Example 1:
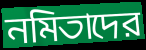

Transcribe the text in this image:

নমিতাদের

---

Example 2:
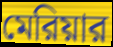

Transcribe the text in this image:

মেরিয়ার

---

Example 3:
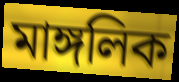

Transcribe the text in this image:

মাঙ্গলিক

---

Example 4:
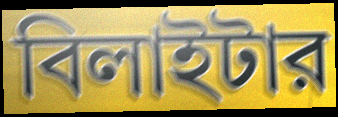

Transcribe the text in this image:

বিলাইটার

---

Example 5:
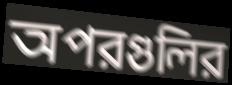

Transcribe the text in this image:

অপরগুলির